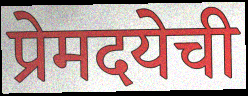
प्रेमदयेची